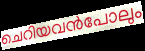
ചെറിയവൻപോലും